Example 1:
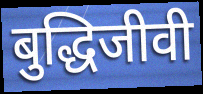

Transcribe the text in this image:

बुद्धिजीवी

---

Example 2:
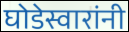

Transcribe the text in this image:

घोडेस्वारांनी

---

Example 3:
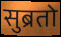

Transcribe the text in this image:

सुब्रतो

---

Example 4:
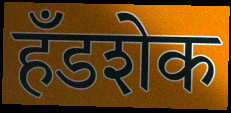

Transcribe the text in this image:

हँडशेक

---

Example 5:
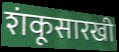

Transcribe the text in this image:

शंकूसारखी